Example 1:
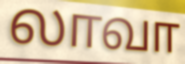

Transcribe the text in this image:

லாவா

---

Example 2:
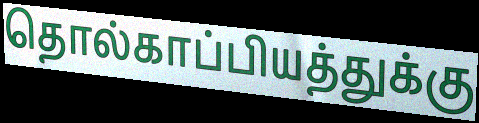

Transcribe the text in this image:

தொல்காப்பியத்துக்கு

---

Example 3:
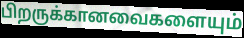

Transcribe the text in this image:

பிறருக்கானவைகளையும்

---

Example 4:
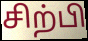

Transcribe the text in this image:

சிற்பி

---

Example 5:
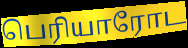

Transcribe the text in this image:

பெரியாரோட